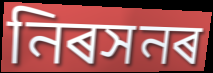
নিৰসনৰ